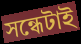
সন্ধেটাই